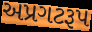
અપ્રગટરૂપ